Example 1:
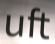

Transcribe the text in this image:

uft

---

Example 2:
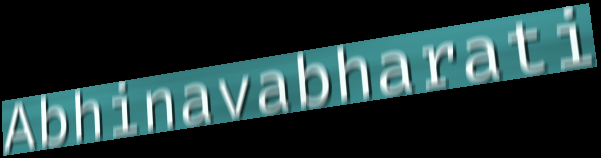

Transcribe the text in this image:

Abhinavabharati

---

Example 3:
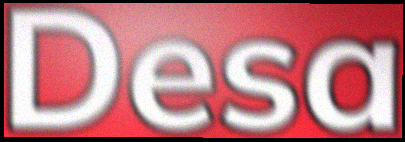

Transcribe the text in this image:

Desa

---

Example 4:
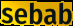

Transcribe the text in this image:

sebab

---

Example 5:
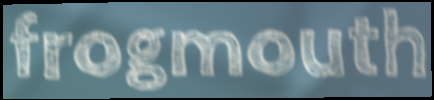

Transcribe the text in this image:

frogmouth